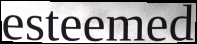
esteemed